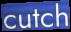
cutch